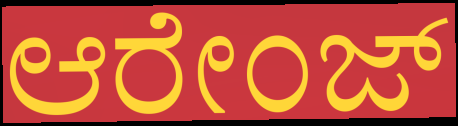
ಆರೇಂಜ್